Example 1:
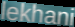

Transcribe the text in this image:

lekhani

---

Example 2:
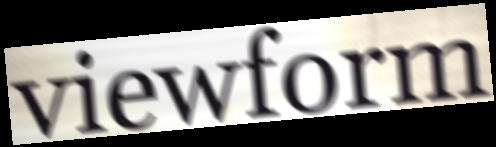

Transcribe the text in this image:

viewform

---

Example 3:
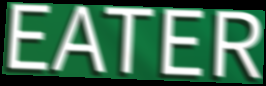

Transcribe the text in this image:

EATER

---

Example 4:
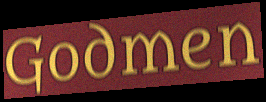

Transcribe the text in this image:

Godmen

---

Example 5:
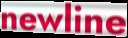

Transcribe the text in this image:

newline